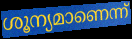
ശൂന്യമാണെന്ന്